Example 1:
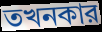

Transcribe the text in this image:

তখনকার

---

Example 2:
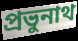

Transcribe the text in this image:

প্রভুনাথ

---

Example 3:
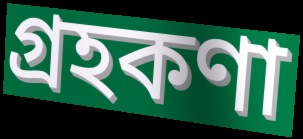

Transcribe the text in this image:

গ্রহকণা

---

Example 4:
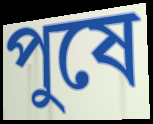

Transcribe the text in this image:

পুষে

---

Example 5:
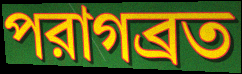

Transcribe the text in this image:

পরাগব্রত